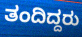
ತಂದಿದ್ದರು